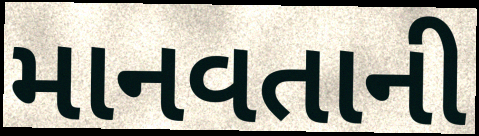
માનવતાની